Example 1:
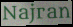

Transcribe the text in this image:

Najran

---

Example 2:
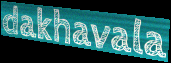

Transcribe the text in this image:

dakhavala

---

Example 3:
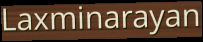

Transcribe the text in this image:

Laxminarayan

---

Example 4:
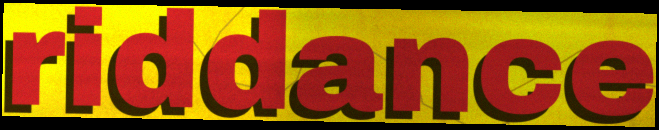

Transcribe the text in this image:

riddance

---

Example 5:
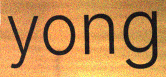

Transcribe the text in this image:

yong